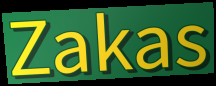
Zakas